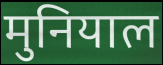
मुनियाल